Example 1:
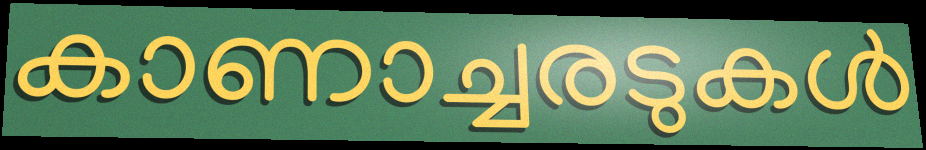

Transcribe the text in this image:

കാണാച്ചരടുകൾ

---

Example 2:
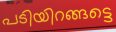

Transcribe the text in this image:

പടിയിറങ്ങട്ടെ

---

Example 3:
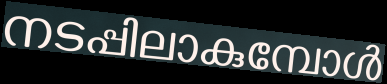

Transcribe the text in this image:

നടപ്പിലാകുമ്പോൾ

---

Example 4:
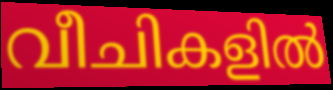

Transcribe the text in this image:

വീചികളിൽ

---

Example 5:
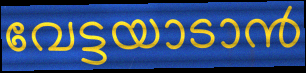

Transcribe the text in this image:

വേട്ടയാടാൻ